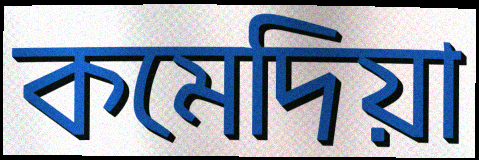
কমেদিয়া